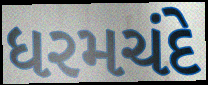
ધરમચંદે